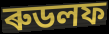
ৰুডলফ